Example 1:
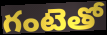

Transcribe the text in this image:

గంటెతో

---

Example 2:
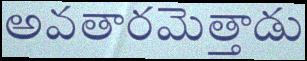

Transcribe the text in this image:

అవతారమెత్తాడు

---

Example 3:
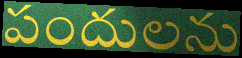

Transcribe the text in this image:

పందులను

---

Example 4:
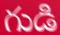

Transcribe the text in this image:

గుడి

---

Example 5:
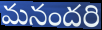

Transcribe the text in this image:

మనందరి